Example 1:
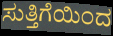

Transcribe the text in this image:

ಸುತ್ತಿಗೆಯಿಂದ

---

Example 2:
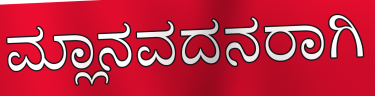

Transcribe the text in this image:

ಮ್ಲಾನವದನರಾಗಿ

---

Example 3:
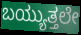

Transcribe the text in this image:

ಬಯ್ಯುತ್ತಲೇ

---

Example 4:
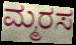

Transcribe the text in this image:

ಮ್ಮರಸ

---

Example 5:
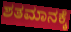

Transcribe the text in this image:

ಶತಮಾನಕ್ಕೆ